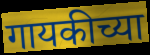
गायकीच्या